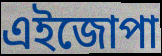
এইজোপা